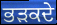
ਭੜਕਦੇ